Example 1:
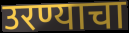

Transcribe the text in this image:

उरण्याचा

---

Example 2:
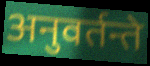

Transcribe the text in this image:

अनुवर्तन्ते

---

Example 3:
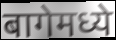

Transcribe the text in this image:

बागेमध्ये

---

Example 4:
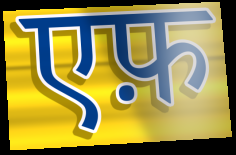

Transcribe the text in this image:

एफ़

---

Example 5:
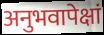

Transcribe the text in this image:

अनुभवापेक्षां